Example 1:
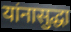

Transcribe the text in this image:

यांनासुद्धा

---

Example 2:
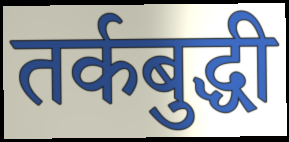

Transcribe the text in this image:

तर्कबुद्धी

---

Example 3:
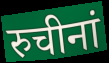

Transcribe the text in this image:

रुचीनां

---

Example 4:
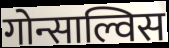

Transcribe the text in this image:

गोन्साल्विस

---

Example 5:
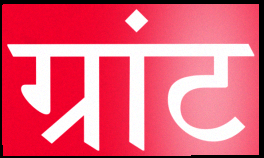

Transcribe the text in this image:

ग्रांट